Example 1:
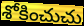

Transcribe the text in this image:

శోకించుచు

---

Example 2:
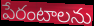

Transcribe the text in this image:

పేరంటాలను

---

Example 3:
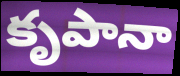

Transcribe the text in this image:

కృపానా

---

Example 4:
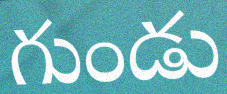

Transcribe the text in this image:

గుండు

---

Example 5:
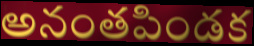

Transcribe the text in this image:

అనంతపిండక